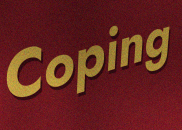
Coping